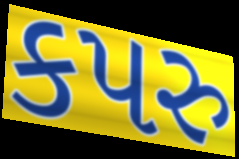
કપરુ